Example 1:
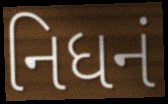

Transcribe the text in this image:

નિધનં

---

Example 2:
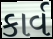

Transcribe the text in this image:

કાર્વ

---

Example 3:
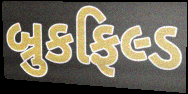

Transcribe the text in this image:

બ્રુકફિલ્ડ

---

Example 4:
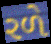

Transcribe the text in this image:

રળે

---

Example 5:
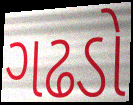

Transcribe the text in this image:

ગઢડો